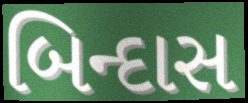
બિન્દાસ